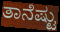
ತಾನೆಷ್ಟು